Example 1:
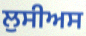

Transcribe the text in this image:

ਲੁਸੀਅਸ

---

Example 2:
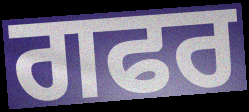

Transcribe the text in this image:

ਗਫਰ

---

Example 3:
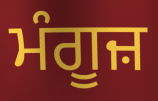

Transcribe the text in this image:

ਮੰਗੂਜ਼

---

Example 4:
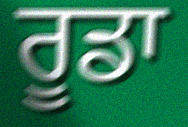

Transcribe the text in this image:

ਰੂਡਾ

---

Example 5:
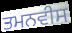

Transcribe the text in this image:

ਤਮਨਵੀਸ